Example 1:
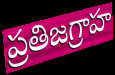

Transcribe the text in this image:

ప్రతిజగ్రాహ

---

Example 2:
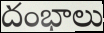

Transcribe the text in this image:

దంభాలు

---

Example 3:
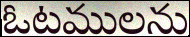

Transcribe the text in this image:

ఓటములను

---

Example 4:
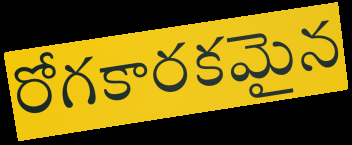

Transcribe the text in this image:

రోగకారకమైన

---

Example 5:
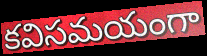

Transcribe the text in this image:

కవిసమయంగా